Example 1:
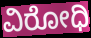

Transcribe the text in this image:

ವಿರೋಧಿ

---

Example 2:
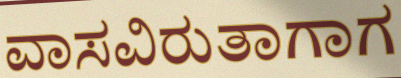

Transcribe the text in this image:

ವಾಸವಿರುತಾಗಾಗ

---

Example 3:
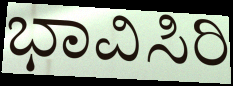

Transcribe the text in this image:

ಭಾವಿಸಿರಿ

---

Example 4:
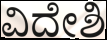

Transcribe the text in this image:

ವಿದೇಶಿ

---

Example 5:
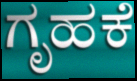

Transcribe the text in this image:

ಗೃಹಕೆ